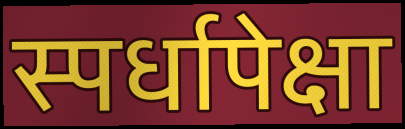
स्पर्धापेक्षा